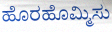
ಹೊರಹೊಮ್ಮಿಸು